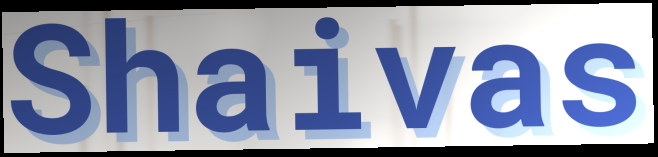
Shaivas